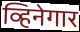
व्हिनेगार